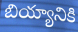
బియ్యానికి